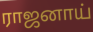
ராஜனாய்